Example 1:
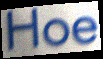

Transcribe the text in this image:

Hoe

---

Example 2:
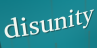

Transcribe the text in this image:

disunity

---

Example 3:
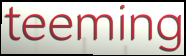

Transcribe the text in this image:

teeming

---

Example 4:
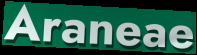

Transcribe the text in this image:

Araneae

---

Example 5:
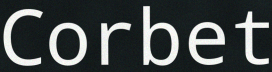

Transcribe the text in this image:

Corbet